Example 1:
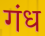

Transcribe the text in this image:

गंध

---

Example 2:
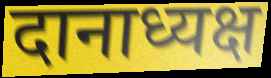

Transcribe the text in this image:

दानाध्यक्ष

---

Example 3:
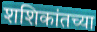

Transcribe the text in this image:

शशिकांतच्या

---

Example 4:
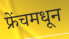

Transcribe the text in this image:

फ्रेंचमधून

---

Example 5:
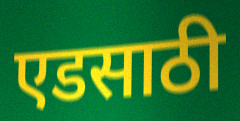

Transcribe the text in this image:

एडसाठी